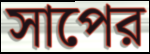
সাপের